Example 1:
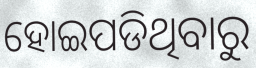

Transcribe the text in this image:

ହୋଇପଡିଥିବାରୁ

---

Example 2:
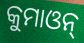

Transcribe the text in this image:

କୁମାଓନ୍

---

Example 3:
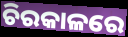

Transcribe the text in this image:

ଚିରକାଳରେ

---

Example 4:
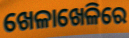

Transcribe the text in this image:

ଖେଳାଖେଳିରେ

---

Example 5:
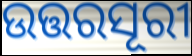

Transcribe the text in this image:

ଉତ୍ତରସୂରୀ